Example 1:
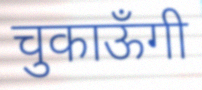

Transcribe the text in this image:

चुकाऊँगी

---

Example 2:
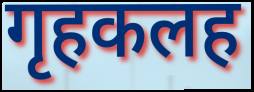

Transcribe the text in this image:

गृहकलह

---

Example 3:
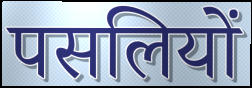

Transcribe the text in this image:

पसलियों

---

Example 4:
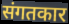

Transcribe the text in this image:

संगतकार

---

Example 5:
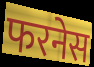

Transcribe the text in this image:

फरनेस